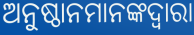
ଅନୁଷ୍ଠାନମାନଙ୍କଦ୍ଵାରା